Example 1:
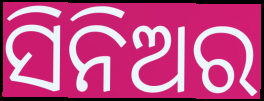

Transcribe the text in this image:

ସିନିଅର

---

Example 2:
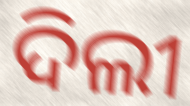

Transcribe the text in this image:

ଦିଲୀ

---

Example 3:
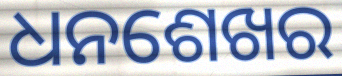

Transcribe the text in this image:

ଧନଶେଖର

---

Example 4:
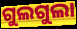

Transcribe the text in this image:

ଗୁଲଗୁଲା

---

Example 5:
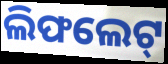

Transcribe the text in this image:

ଲିଫଲେଟ୍